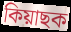
কিয়াছক